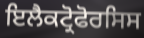
ਇਲੈਕਟ੍ਰੋਫੋਰਸਿਸ